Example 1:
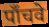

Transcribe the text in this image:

पाँचवे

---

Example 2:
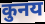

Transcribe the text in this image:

कुनय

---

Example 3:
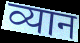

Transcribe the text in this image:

व्यान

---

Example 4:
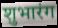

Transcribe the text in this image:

शुभारंग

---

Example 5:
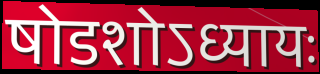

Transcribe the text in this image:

षोडशोऽध्यायः